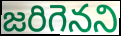
జరిగెనని